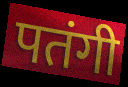
पतंगी